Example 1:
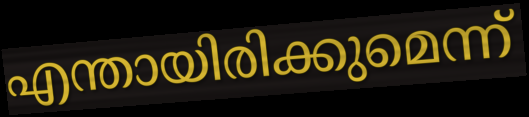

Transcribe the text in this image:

എന്തായിരിക്കുമെന്ന്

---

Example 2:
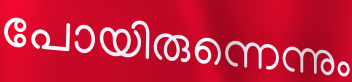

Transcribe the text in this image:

പോയിരുന്നെന്നും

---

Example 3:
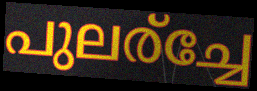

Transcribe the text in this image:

പുലര്ച്ചേ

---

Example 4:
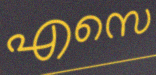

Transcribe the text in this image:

എസെ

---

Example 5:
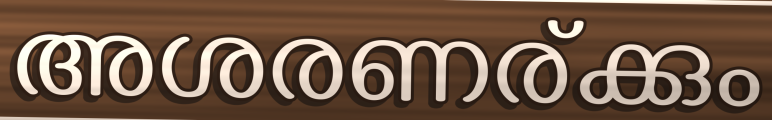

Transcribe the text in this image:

അശരണര്ക്കും